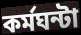
কর্মঘন্টা